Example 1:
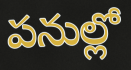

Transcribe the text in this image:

పనుల్లో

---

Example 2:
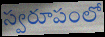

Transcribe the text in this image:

స్వరూపంలో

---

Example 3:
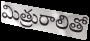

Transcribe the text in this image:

మిత్రురాలితో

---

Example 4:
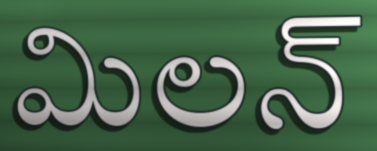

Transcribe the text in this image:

మిలన్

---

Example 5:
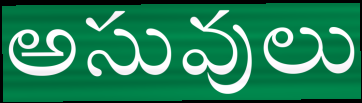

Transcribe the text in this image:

అసువులు